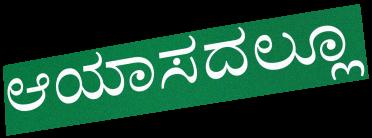
ಆಯಾಸದಲ್ಲೂ